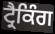
ਟ੍ਰੈਕਿੰਗ